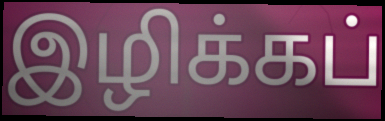
இழிக்கப்